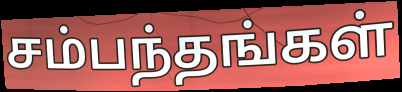
சம்பந்தங்கள்